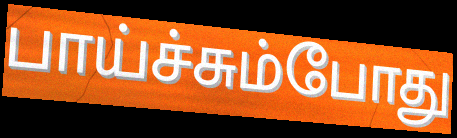
பாய்ச்சும்போது